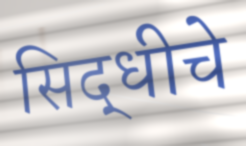
सिद्धीचे